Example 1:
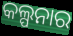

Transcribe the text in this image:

କଲ୍ପନାର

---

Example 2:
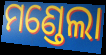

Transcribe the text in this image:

ମଣ୍ଡେଲା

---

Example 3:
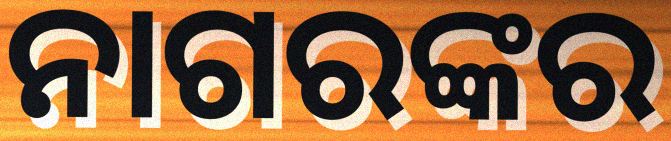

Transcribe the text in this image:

ନାଗରଙ୍କର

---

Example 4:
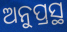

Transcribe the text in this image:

ଅନୁପ୍ରସ୍ଥ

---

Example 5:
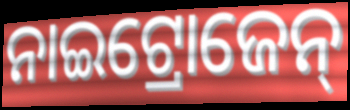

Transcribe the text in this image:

ନାଇଟ୍ରୋଜେନ୍